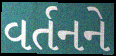
વર્તનને